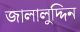
জালালুদ্দিন